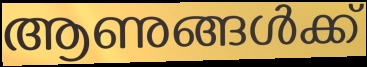
ആണുങ്ങൾക്ക്